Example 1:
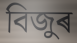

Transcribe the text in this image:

বিজুৰ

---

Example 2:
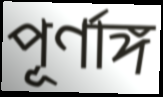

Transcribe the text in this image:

পূৰ্ণাঙ্গ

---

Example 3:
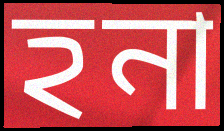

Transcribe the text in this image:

হনা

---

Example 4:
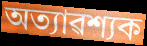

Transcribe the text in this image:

অত্যাৱশ্যক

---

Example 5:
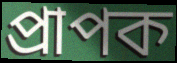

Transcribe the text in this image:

প্ৰাপক